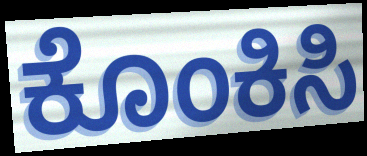
ಕೊಂಕಿಸಿ